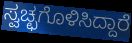
ಸ್ವಚ್ಛಗೊಳಿಸಿದ್ದಾರೆ